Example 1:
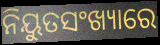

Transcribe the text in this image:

ନିୟୁତସଂଖ୍ୟାରେ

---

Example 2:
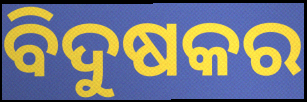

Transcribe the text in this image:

ବିଦୁଷକର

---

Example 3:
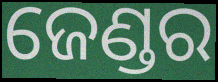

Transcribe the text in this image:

ଜେଣ୍ଡର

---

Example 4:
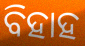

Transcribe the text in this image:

ବିହାହ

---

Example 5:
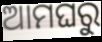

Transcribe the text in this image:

ଆମଘରୁ